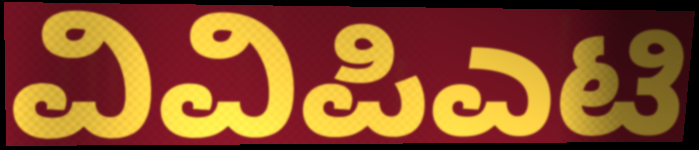
ವಿವಿಪಿಎಟಿ